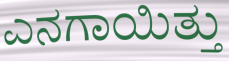
ಎನಗಾಯಿತ್ತು